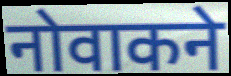
नोवाकने